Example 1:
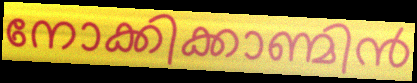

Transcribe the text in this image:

നോക്കിക്കാണ്മിൻ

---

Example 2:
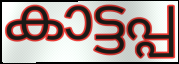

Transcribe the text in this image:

കാട്ടപ്പ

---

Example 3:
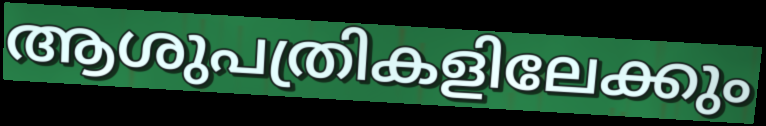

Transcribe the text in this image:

ആശുപത്രികളിലേക്കും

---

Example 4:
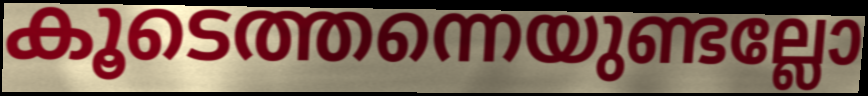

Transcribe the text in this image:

കൂടെത്തന്നെയുണ്ടല്ലോ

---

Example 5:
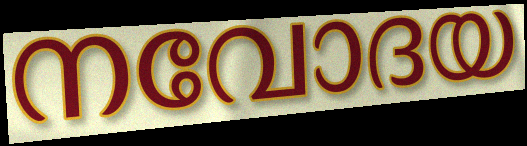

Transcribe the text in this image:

നവോദയ